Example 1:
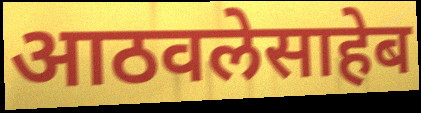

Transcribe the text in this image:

आठवलेसाहेब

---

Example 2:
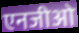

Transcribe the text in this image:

एनजीओ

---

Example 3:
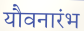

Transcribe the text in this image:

यौवनारंभ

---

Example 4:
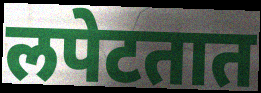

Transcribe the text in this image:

लपेटतात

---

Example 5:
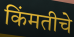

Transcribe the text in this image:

किंमतीचे